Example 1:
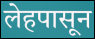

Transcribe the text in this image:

लेहपासून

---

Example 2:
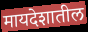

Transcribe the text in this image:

मायदेशातील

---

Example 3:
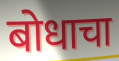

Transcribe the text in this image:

बोधाचा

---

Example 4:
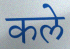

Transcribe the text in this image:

कले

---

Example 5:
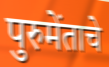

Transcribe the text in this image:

पुरुमेंताचे